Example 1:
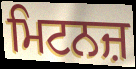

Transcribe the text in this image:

ਮਿਟਨਜ਼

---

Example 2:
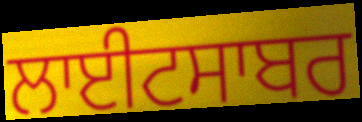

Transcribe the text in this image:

ਲਾਈਟਸਾਬਰ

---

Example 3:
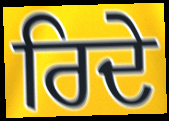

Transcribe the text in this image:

ਰਿਦੇ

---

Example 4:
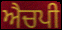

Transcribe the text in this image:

ਐਚਪੀ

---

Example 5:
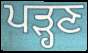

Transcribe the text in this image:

ਪੜ੍ਹਣ